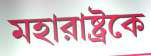
মহারাষ্ট্রকে